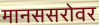
मानससरोवर